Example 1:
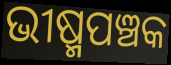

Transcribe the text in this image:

ଭୀଷ୍ମପଞ୍ଚକ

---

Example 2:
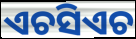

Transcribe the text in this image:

ଏଚସିଏଚ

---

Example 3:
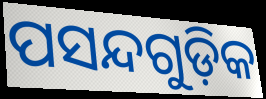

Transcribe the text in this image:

ପସନ୍ଦଗୁଡ଼ିକ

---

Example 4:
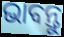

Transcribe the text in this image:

ଭାବନ୍ତୁ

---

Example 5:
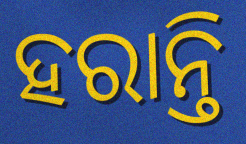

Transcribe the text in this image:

ହରାନ୍ତି